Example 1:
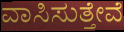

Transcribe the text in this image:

ವಾಸಿಸುತ್ತೇವೆ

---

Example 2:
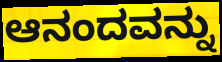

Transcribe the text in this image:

ಆನಂದವನ್ನು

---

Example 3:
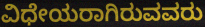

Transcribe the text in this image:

ವಿಧೇಯರಾಗಿರುವವರು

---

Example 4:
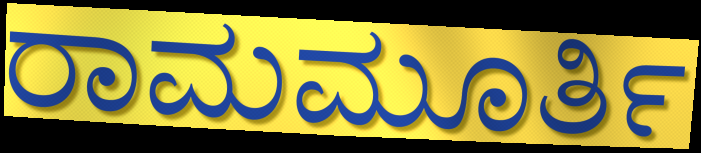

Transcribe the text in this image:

ರಾಮಮೂರ್ತಿ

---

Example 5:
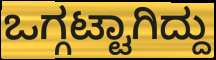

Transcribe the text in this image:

ಒಗ್ಗಟ್ಟಾಗಿದ್ದು